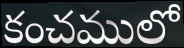
కంచములో